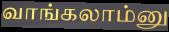
வாங்கலாம்னு